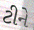
ટીને